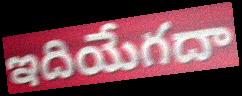
ఇదియేగదా